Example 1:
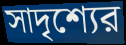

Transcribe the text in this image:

সাদৃশ্যের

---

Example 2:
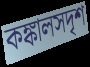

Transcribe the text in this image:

কঙ্কালসদৃশ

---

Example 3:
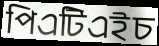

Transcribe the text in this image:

পিএটিএইচ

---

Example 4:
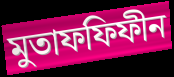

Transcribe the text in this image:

মুতাফফিফীন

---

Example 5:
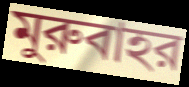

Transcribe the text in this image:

মুরুবাহর